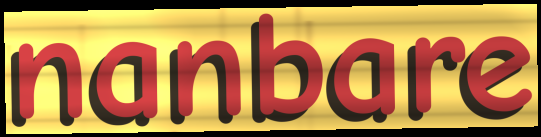
nanbare